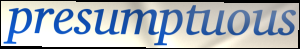
presumptuous